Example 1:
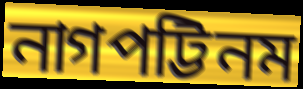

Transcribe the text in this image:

নাগপট্টিনম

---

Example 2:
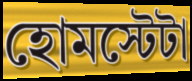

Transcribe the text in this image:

হোমস্টেটা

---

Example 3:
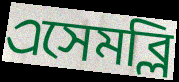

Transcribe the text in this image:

এসেমব্লি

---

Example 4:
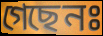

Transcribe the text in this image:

গেছেনঃ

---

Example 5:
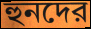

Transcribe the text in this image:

হুনদের